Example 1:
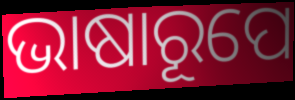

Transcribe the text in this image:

ଭାଷାରୂପେ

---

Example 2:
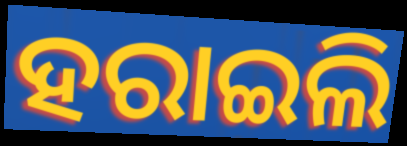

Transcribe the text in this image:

ହରାଇଲି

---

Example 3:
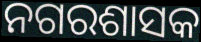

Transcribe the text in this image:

ନଗରଶାସକ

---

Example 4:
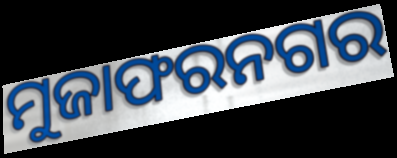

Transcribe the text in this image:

ମୁଜାଫରନଗର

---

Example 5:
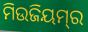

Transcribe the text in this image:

ମିଉଜିୟମ୍‌ର